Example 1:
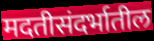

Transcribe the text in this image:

मदतीसंदर्भातील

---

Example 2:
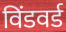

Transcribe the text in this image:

विंडवर्ड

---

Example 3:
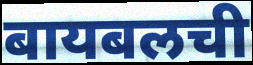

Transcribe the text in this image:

बायबलची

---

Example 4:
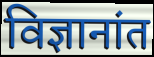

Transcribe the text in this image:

विज्ञानांत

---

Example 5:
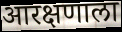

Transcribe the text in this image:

आरक्षणाला